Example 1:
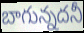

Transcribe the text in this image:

బాగున్నదనీ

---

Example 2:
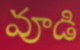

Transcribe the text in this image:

వూడి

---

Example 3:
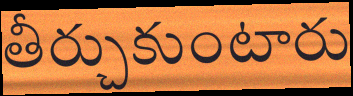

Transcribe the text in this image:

తీర్చుకుంటారు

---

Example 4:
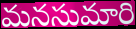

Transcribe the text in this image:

మనసుమారి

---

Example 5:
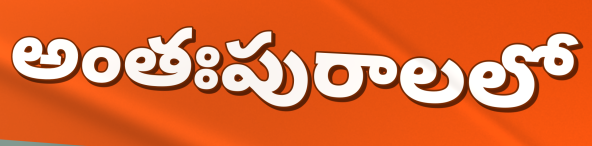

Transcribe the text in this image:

అంతఃపురాలలో